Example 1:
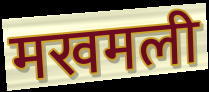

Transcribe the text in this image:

मखमली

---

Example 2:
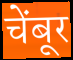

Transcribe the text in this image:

चेंबूर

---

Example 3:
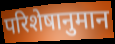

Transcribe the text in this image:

परिशेषानुमान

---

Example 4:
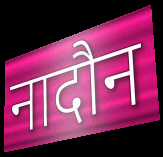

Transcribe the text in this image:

नादौन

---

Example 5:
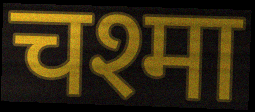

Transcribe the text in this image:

चश्मा